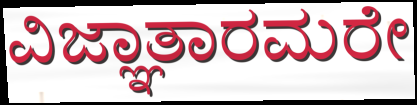
ವಿಜ್ಞಾತಾರಮರೇ